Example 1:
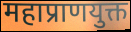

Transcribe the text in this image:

महाप्राणयुक्त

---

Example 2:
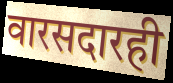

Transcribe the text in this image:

वारसदारही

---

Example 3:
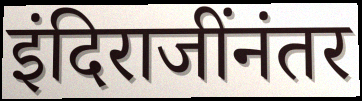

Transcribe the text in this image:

इंदिराजींनंतर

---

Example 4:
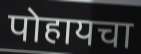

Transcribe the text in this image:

पोहायचा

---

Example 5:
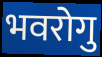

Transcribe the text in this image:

भवरोगु